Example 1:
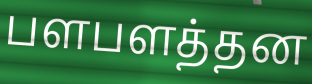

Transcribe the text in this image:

பளபளத்தன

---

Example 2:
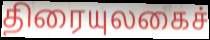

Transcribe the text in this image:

திரையுலகைச்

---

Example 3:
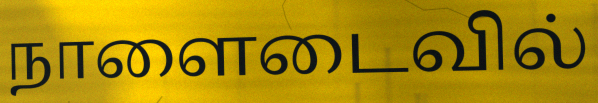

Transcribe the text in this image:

நாளைடைவில்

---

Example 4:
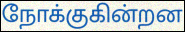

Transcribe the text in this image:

நோக்குகின்றன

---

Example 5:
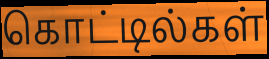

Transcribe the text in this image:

கொட்டில்கள்